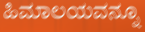
ಹಿಮಾಲಯವನ್ನೂ